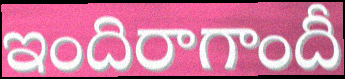
ఇందిరాగాందీ